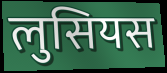
लुसियस